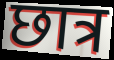
छात्र